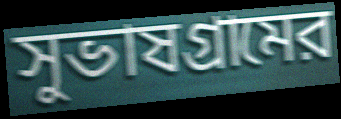
সুভাষগ্রামের